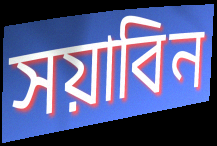
সয়াবিন